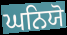
ਘਨਿਯੋ